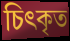
চিৎকৃত